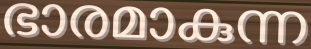
ഭാരമാകുന്ന